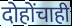
दोहोंचाही